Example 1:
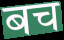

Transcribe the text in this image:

बच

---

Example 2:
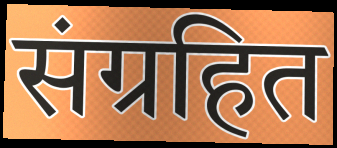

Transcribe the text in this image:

संग्रहित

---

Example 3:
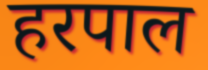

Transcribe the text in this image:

हरपाल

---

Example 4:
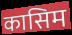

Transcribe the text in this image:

कासिम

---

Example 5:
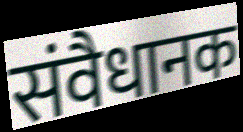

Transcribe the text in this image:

संवैधानक